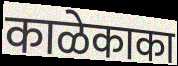
काळेकाका